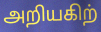
அறியகிற்